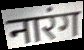
नारंग